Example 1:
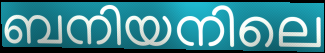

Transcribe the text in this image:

ബനിയനിലെ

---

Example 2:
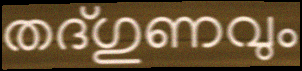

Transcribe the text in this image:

തദ്ഗുണവും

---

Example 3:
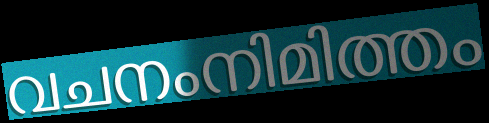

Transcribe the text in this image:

വചനംനിമിത്തം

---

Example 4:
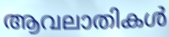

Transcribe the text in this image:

ആവലാതികൾ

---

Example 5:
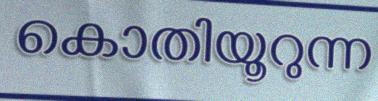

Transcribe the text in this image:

കൊതിയൂറുന്ന